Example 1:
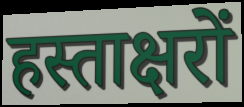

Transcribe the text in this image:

हस्ताक्षरों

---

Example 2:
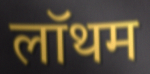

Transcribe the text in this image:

लॉथम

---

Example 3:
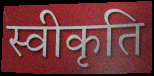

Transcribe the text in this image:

स्वीकृति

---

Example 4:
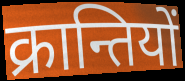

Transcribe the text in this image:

क्रान्तियों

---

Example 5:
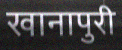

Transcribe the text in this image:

खानापुरी